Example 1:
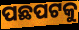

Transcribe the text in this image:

ପଛପଟକୁ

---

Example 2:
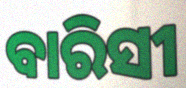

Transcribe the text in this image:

ବାରିସୀ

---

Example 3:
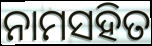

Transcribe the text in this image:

ନାମସହିତ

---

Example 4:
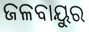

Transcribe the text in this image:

ଜଳବାୟୁର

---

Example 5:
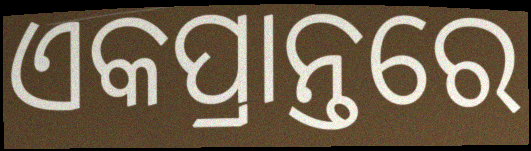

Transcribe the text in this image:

ଏକପ୍ରାନ୍ତରେ